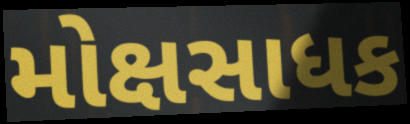
મોક્ષસાધક